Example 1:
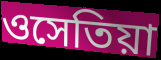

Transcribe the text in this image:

ওসেতিয়া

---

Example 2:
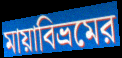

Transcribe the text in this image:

মায়াবিভ্রমের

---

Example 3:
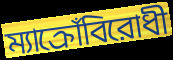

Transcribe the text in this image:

ম্যাক্রোঁবিরোধী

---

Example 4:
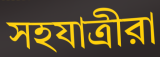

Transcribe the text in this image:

সহযাত্রীরা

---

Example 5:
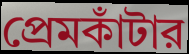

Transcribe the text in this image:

প্রেমকাঁটার